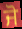
ਜੋ